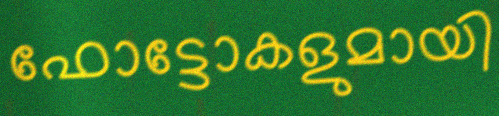
ഫോട്ടോകളുമായി